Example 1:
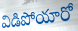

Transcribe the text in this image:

విడిపోయారో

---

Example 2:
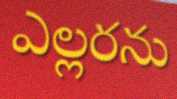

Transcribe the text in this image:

ఎల్లరను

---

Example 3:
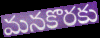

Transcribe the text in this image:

మనకొరకు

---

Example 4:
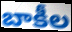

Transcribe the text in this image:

బాకీల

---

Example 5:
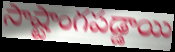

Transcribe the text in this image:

సాష్టాంగపడ్డాయి